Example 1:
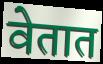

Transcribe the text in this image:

वेतात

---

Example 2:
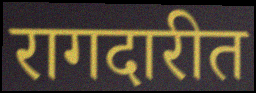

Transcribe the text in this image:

रागदारीत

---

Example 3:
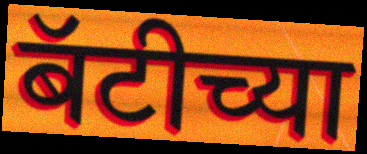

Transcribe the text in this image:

बॅटीच्या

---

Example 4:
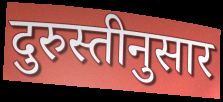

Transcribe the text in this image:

दुरुस्तीनुसार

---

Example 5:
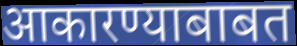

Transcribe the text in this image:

आकारण्याबाबत